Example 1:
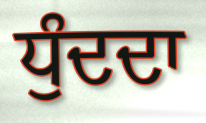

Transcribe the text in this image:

ਧੁੰਦਦਾ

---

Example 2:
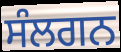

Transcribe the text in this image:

ਸੰਲਗਨ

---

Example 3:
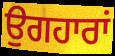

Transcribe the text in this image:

ਉਗਹਾਰਾਂ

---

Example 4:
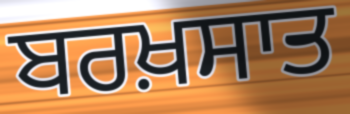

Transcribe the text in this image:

ਬਰਖ਼ਸਾਤ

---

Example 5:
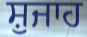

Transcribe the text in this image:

ਸ਼ੁਜਾਹ